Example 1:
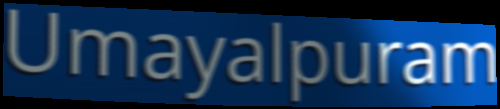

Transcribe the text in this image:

Umayalpuram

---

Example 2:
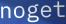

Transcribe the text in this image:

noget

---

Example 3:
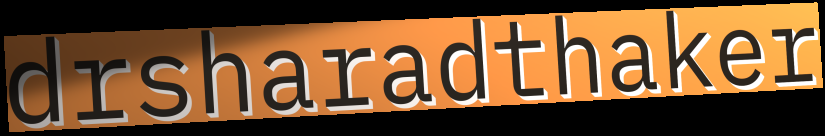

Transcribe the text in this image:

drsharadthaker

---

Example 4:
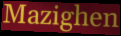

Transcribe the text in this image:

Mazighen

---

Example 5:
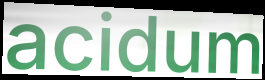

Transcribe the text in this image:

acidum